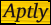
Aptly